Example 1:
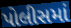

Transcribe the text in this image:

પોલીસમાં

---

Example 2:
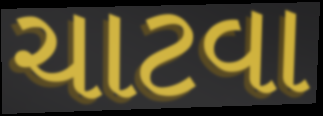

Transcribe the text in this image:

ચાટવા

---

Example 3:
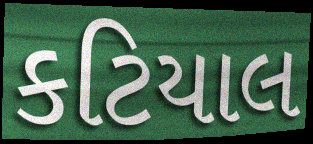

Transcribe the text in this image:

કટિયાલ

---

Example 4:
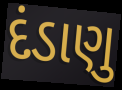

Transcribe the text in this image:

દંડાણુ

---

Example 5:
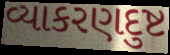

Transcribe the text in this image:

વ્યાકરણદુષ્ટ